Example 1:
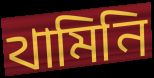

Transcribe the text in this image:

থামিনি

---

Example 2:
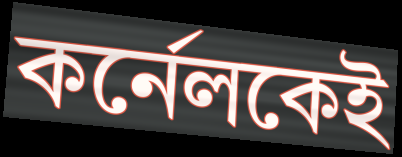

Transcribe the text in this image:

কর্নেলকেই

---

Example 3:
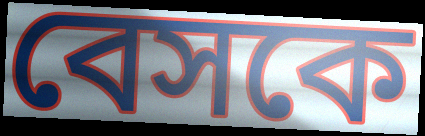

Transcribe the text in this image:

বেসকে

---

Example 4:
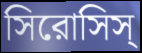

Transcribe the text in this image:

সিরোসিস্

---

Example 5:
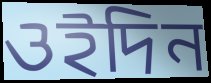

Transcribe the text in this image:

ওইদিন